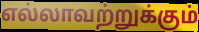
எல்லாவற்றுக்கும்